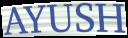
AYUSH